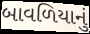
બાવળિયાનું